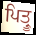
ਪਿਤ੍ਰੂ